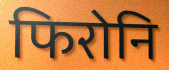
फिरोनि